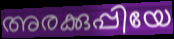
അരക്കുപ്പിയേ